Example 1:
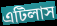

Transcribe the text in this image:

এটিলাস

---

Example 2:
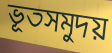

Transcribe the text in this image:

ভূতসমুদয়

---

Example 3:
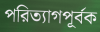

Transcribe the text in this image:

পরিত্যাগপূর্বক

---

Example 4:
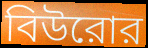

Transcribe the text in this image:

বিউরোর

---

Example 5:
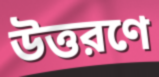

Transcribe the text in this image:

উত্তরণে